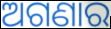
ଅଗଣାର